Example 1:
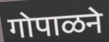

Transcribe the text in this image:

गोपाळने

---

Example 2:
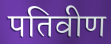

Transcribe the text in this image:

पतिवीण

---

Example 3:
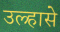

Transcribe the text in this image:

उल्हासे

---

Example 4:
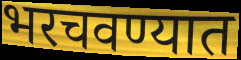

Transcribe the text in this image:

भरचवण्यात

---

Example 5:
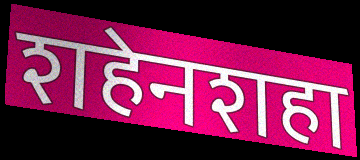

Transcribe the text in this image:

शहेनशहा